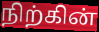
நிற்கின்